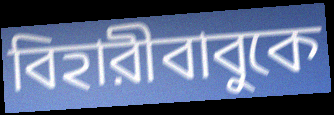
বিহারীবাবুকে